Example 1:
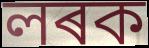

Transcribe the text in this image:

লৰক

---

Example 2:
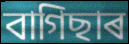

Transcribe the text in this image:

বাগিছাৰ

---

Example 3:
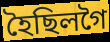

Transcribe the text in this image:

হৈছিলগৈ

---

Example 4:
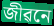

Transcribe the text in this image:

জীৱনে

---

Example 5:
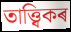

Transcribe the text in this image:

তাত্ত্বিকৰ